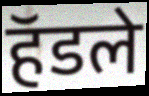
हॅडले